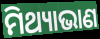
ମିଥ୍ୟାଭାଣ